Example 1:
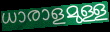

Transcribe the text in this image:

ധാരാളമുള്ള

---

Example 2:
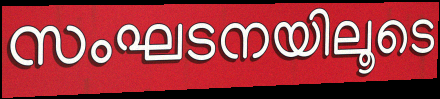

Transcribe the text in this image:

സംഘടനയിലൂടെ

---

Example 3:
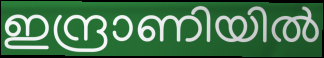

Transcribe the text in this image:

ഇന്ദ്രാണിയിൽ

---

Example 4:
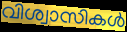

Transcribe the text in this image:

വിശ്വാസികൾ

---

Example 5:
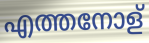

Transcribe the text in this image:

എത്തനോള്